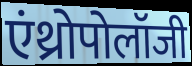
एंथ्रोपोलॉजी